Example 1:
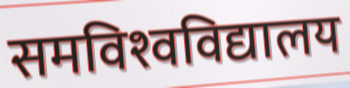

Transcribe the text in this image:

समविश्वविद्यालय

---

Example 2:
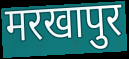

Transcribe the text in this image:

मरखापुर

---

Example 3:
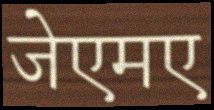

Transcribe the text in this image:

जेएमए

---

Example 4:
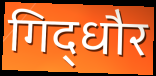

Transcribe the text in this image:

गिद्धौर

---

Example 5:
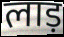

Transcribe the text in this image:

लाड़